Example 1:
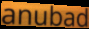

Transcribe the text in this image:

anubad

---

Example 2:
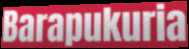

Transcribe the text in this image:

Barapukuria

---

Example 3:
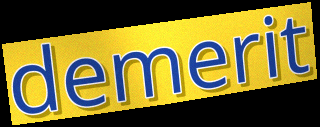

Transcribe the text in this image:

demerit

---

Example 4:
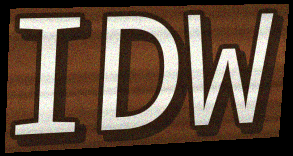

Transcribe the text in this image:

IDW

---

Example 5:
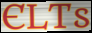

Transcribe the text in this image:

ELTs